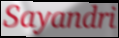
Sayandri